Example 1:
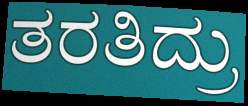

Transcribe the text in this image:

ತರತಿದ್ರು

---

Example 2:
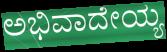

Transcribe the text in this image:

ಅಭಿವಾದೇಯ್ಯ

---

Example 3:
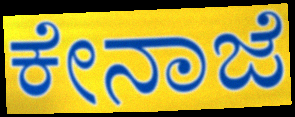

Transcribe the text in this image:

ಕೇನಾಜೆ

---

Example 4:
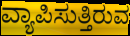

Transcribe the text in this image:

ವ್ಯಾಪಿಸುತ್ತಿರುವ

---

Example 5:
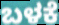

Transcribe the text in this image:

ಬಳಕೆ